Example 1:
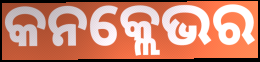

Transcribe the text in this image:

କନକ୍ଲେଭର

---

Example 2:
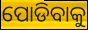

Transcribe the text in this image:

ପୋଡିବାକୁ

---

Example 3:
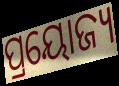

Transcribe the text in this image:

ପ୍ରୟୋଜ୍ୟ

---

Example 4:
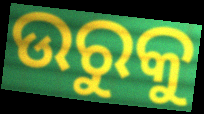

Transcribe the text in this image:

ଉରୁକୁ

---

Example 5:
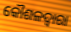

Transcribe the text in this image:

କୌଶଳଦ୍ୱାରା